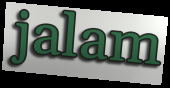
jalam